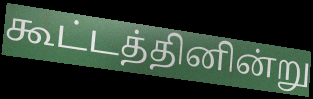
கூட்டத்தினின்று